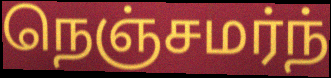
நெஞ்சமர்ந்